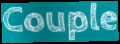
Couple